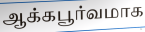
ஆக்கபூர்வமாக